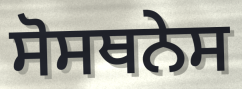
ਸੋਸਥਨੇਸ